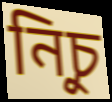
নিচু